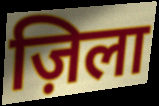
ज़िला